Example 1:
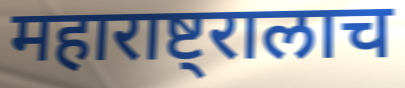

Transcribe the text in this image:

महाराष्ट्रालाच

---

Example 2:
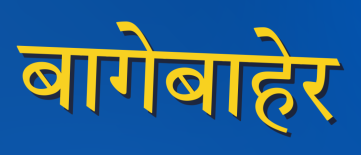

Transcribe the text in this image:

बागेबाहेर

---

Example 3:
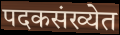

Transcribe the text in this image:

पदकसंख्येत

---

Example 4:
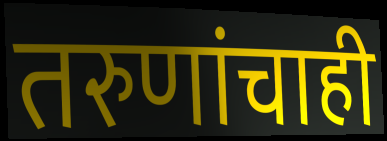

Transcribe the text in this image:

तरुणांचाही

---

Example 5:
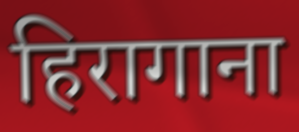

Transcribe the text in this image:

हिरागाना